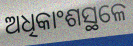
ଅଧିକାଂଶସ୍ଥଳେ